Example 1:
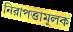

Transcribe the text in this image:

নিরাপত্তামূলক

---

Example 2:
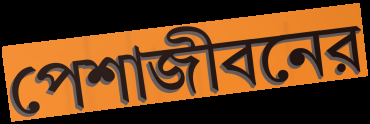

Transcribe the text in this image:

পেশাজীবনের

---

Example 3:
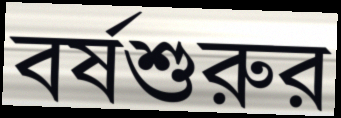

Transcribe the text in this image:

বর্ষশুরুর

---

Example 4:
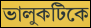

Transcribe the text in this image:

ভালুকটিকে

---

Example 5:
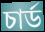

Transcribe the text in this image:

চার্ড